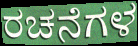
ರಚನೆಗಳ